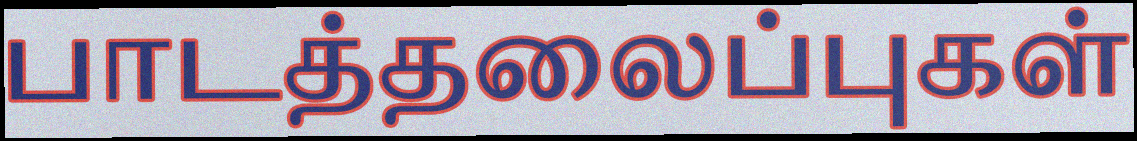
பாடத்தலைப்புகள்